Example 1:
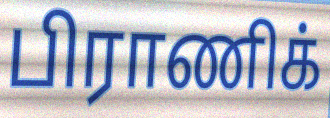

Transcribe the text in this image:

பிராணிக்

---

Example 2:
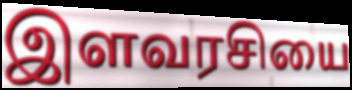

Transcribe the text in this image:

இளவரசியை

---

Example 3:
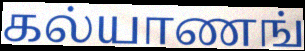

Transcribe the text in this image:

கல்யாணங்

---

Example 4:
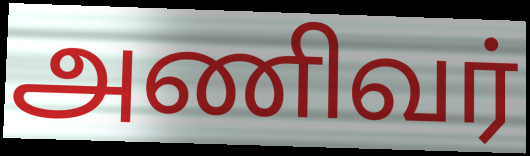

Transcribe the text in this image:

அணிவர்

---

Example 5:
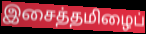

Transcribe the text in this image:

இசைத்தமிழைப்